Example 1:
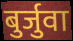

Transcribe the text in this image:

बुर्जुवा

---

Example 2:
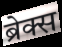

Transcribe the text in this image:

ब्रेक्स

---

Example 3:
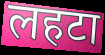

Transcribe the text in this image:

लहटा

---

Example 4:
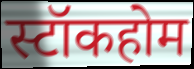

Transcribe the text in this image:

स्टॉकहोम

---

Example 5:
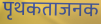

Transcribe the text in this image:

पृथकताजनक